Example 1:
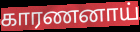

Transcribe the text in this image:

காரணனாய்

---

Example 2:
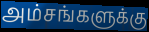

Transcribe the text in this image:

அம்சங்களுக்கு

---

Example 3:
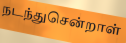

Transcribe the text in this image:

நடந்துசென்றாள்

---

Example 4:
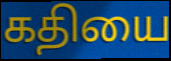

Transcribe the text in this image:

கதியை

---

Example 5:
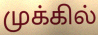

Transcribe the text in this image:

முக்கில்